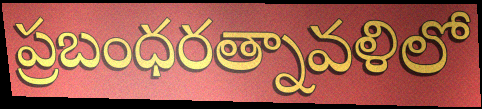
ప్రబంధరత్నావళిలో